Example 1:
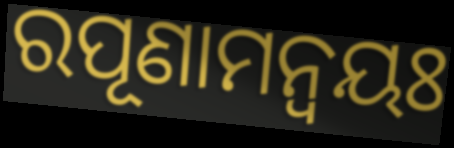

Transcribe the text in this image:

ରପୂଣାମନ୍ଵୟଃ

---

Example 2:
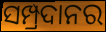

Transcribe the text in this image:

ସମ୍ପ୍ରଦାନର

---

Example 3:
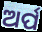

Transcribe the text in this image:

ଅର୍ପ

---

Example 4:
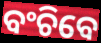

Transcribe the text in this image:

ବଂଚିବେ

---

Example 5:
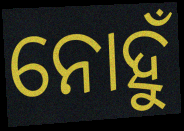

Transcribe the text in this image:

ନୋହୁଁ